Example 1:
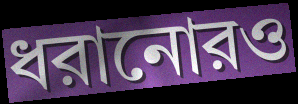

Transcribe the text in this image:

ধরানোরও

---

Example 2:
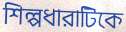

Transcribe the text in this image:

শিল্পধারাটিকে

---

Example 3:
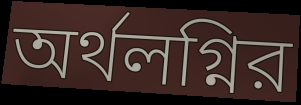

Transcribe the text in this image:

অর্থলগ্নির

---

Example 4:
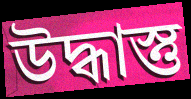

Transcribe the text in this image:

উদ্ধাস্তু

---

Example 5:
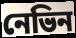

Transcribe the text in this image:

নেভিন